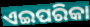
ଏଇପରିକା